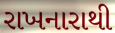
રાખનારાથી